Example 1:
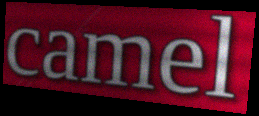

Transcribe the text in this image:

camel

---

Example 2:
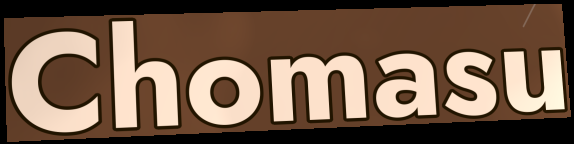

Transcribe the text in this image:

Chomasu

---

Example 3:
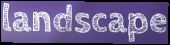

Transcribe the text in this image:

landscape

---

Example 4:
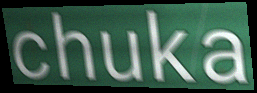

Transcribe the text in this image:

chuka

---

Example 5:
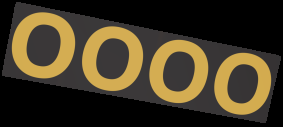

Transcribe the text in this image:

OOOO